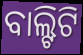
ବାଲ୍ଟିଟି